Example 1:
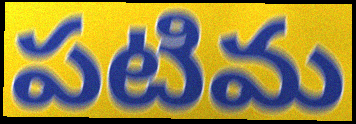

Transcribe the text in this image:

పటిమ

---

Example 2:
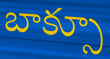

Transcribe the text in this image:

బాక్సూ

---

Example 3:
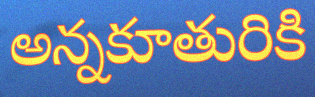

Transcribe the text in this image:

అన్నకూతురికి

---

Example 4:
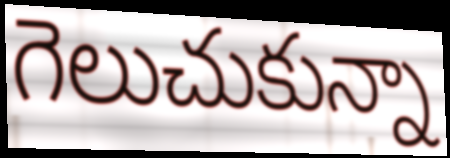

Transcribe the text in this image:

గెలుచుకున్నా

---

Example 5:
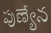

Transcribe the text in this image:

పుణ్యేన